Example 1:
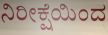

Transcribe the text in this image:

ನಿರೀಕ್ಷೆಯಿಂದ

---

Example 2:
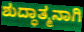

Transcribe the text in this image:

ಶುದ್ಧಾತ್ಮನಾಗಿ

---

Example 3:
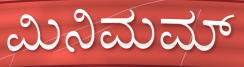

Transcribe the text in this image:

ಮಿನಿಮಮ್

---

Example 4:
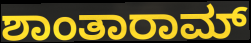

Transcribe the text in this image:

ಶಾಂತಾರಾಮ್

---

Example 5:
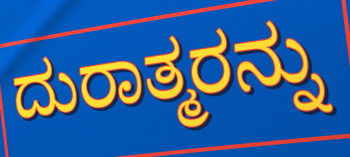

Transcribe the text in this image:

ದುರಾತ್ಮರನ್ನು